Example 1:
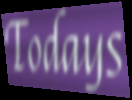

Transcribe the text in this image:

Todays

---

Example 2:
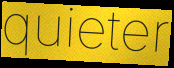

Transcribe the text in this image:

quieter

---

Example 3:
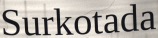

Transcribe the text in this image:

Surkotada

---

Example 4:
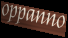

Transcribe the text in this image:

oppanno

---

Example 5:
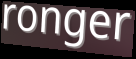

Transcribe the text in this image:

ronger